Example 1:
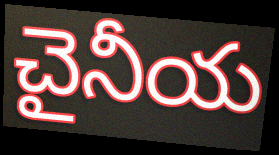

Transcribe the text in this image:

చైనీయ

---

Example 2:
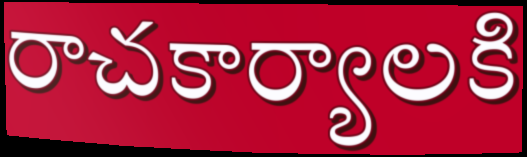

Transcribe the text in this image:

రాచకార్యాలకి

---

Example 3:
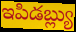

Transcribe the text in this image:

ఇపిడబ్ల్యు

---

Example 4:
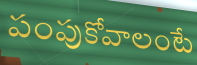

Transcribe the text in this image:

పంపుకోవాలంటే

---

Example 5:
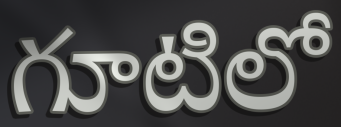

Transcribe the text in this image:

గూటిలో